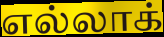
எல்லாக்